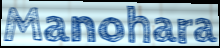
Manohara